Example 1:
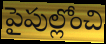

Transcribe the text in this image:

పైపుల్లోంచి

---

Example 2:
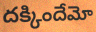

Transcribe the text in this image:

దక్కిందేమో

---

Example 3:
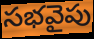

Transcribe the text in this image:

సభవైపు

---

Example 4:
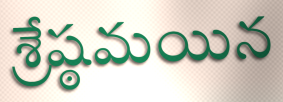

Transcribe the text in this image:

శ్రేష్ఠమయిన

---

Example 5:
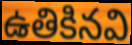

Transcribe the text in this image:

ఉతికినవి